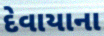
દેવાયાના